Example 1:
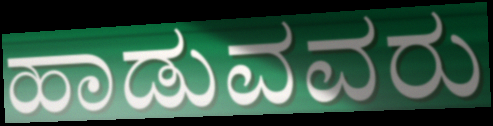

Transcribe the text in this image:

ಹಾಡುವವರು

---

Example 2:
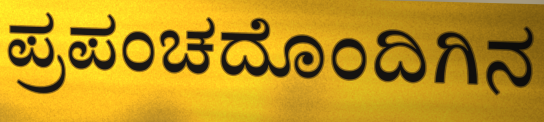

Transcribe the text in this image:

ಪ್ರಪಂಚದೊಂದಿಗಿನ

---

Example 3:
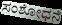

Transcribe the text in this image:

ಸಂಶೋಧನೆ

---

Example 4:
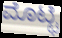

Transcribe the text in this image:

ಮೊಟ್ಟೆ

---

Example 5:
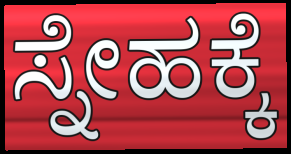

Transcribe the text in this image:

ಸ್ನೇಹಕ್ಕೆ